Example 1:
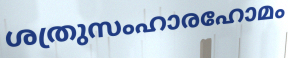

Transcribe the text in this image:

ശത്രുസംഹാരഹോമം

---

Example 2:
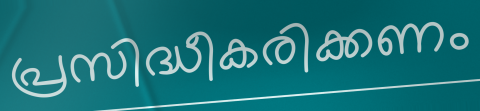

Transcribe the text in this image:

പ്രസിദ്ധീകരിക്കണം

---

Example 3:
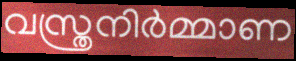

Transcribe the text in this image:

വസ്ത്രനിർമ്മാണ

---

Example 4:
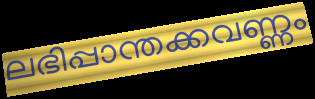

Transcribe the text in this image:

ലഭിപ്പാന്തക്കവണ്ണം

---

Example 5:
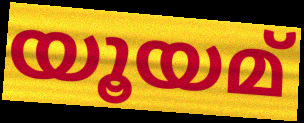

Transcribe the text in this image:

യൂയമ്